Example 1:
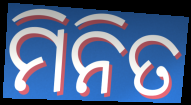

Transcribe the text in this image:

ମିନିତ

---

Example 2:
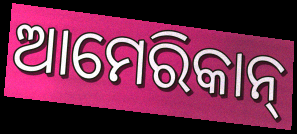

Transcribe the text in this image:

ଆମେରିକାନ୍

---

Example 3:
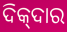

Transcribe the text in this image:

ଦିକ୍‍ଦାର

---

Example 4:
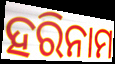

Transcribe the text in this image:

ହରିନାମ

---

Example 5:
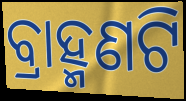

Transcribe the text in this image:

ବ୍ରାହ୍ମଣଟି